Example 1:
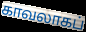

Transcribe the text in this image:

காவலாகப்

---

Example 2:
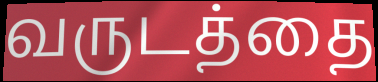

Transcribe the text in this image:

வருடத்தை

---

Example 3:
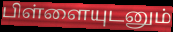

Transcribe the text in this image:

பிள்ளையுடனும்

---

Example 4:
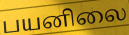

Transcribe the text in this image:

பயனிலை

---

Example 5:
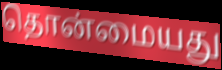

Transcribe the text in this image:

தொன்மையது